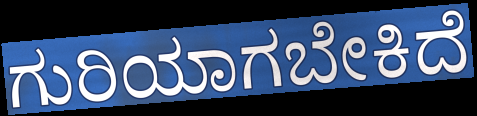
ಗುರಿಯಾಗಬೇಕಿದೆ